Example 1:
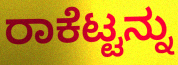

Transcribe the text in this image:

ರಾಕೆಟ್ಟನ್ನು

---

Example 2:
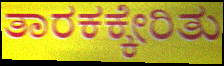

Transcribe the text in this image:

ತಾರಕಕ್ಕೇರಿತು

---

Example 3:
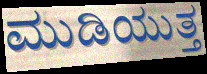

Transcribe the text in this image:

ಮುಡಿಯುತ್ತ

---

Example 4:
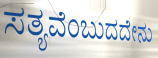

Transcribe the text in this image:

ಸತ್ಯವೆಂಬುದದೇನು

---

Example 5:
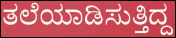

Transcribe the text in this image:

ತಲೆಯಾಡಿಸುತ್ತಿದ್ದ